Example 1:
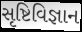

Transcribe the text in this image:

સૃષ્ટિવિજ્ઞાન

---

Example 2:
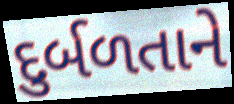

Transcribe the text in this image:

દુર્બળતાને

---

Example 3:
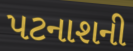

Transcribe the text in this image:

પટનાશની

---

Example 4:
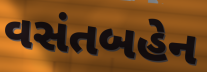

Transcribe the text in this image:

વસંતબહેન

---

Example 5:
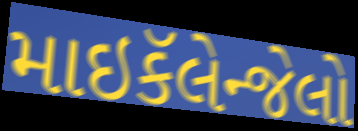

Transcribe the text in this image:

માઇકૅલેન્જેલો